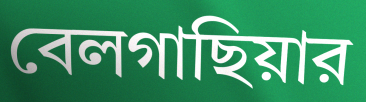
বেলগাছিয়ার